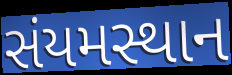
સંયમસ્થાન